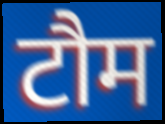
टौम